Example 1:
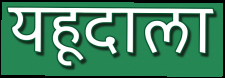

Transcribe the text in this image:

यहूदाला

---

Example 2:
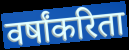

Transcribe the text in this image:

वर्षांकरिता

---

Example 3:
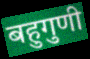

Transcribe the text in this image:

बहुगुणी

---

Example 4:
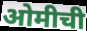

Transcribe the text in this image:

ओमीची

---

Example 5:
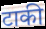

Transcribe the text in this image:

टाकी